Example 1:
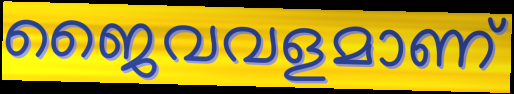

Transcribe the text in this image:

ജൈവവളമാണ്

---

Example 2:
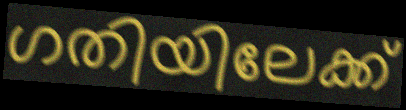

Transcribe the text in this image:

ഗതിയിലേക്ക്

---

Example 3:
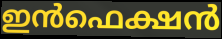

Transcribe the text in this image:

ഇൻഫെക്ഷൻ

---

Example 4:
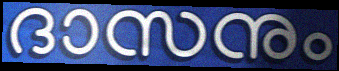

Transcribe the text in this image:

ദാസനും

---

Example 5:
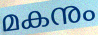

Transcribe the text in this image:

മകനും